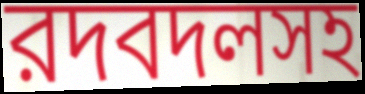
রদবদলসহ